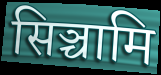
सिञ्चामि